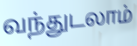
வந்துடலாம்